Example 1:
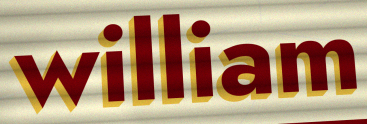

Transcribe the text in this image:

william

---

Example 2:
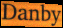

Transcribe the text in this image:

Danby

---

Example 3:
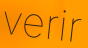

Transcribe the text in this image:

verir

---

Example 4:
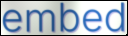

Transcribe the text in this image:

embed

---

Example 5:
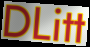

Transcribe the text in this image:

DLitt